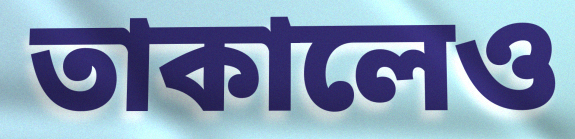
তাকালেও